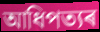
আধিপত্যৰ